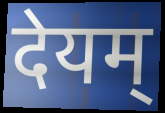
देयम्